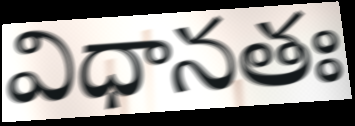
విధానతః